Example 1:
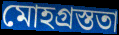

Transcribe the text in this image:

মোহগ্রস্ততা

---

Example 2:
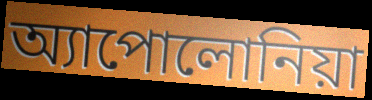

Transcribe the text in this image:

অ্যাপোলোনিয়া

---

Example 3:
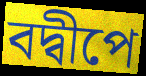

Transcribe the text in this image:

বদ্বীপে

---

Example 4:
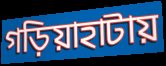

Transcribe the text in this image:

গড়িয়াহাটায়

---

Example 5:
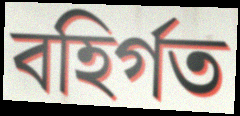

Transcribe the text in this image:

বহির্গত